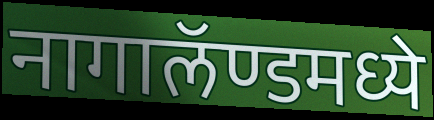
नागालॅण्डमध्ये